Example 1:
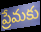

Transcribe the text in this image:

ప్రేమకు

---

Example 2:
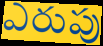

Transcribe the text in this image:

ఎరుపు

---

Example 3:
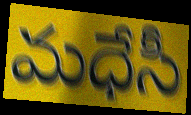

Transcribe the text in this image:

మధేసీ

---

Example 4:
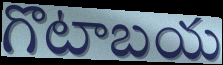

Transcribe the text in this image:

గొటాబయ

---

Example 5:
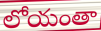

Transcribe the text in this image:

లోయంతా